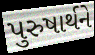
પુરુષાર્થને